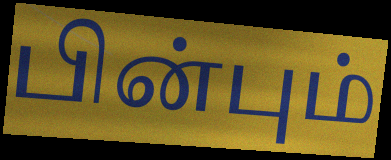
பின்பும்